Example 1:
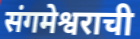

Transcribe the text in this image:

संगमेश्वराची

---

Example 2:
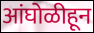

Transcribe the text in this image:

आंघोळीहून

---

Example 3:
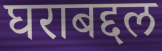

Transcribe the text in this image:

घराबद्दल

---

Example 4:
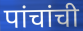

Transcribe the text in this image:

पांचांची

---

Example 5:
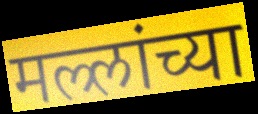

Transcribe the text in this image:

मल्लांच्या